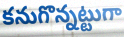
కనుగొన్నట్టుగా